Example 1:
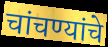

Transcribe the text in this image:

चांचण्यांचे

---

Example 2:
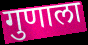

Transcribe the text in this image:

गुणाला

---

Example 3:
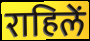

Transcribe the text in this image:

राहिलें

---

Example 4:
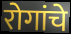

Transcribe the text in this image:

रोगांचे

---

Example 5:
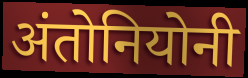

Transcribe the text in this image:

अंतोनियोनी